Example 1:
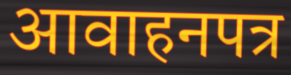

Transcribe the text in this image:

आवाहनपत्र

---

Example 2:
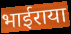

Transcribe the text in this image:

भाईराया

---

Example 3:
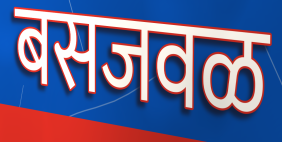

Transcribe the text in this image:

बसजवळ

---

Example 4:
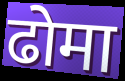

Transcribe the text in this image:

ढोमा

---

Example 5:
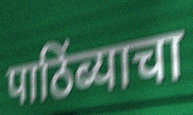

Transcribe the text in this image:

पाठिंब्याचा